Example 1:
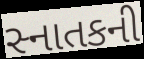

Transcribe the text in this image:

સ્નાતકની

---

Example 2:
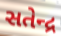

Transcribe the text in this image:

સતેન્દ્ર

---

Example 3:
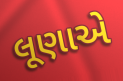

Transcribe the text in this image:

લૂણાએ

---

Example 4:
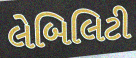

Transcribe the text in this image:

લેબિલિટી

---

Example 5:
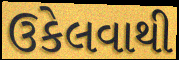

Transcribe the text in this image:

ઉકેલવાથી